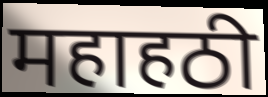
महाहठी